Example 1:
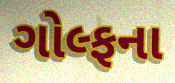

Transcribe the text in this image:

ગોલ્ફના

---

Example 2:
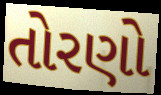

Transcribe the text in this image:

તોરણો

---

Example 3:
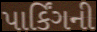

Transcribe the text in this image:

પાર્કિંગની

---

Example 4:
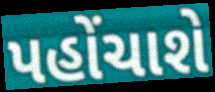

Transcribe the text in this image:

પહોંચાશે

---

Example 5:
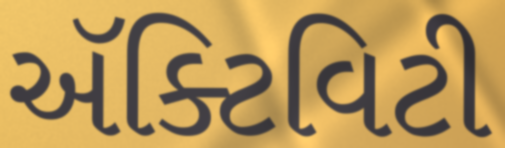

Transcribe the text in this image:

ઍક્ટિવિટી